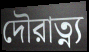
দৌরাত্ন্য